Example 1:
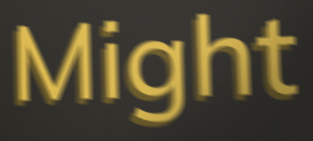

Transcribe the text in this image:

Might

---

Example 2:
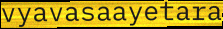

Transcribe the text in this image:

vyavasaayetara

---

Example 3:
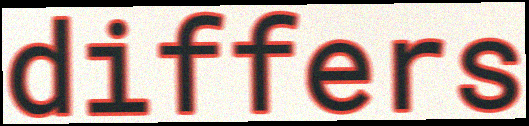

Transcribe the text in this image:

differs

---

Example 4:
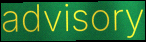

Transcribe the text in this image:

advisory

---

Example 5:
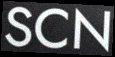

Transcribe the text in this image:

SCN